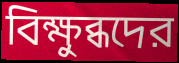
বিক্ষুব্ধদের